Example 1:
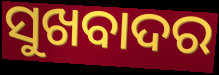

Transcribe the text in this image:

ସୁଖବାଦର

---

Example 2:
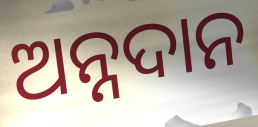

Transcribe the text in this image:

ଅନ୍ନଦାନ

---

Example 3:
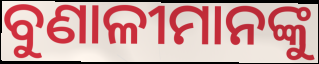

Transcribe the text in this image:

ବୁଣାଳୀମାନଙ୍କୁ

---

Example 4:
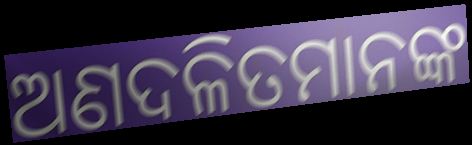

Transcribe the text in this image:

ଅଣଦଳିତମାନଙ୍କ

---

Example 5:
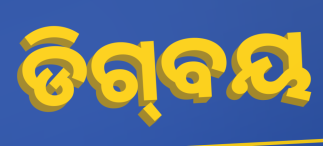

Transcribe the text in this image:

ଡିଗ୍‌ବୟ